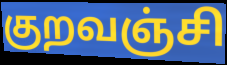
குறவஞ்சி